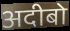
अदीबो